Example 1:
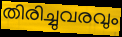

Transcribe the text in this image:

തിരിച്ചുവരവും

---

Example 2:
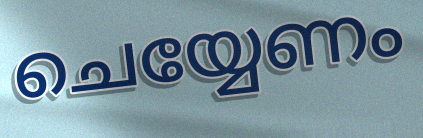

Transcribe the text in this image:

ചെയ്യേണം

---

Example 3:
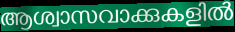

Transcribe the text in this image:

ആശ്വാസവാക്കുകളിൽ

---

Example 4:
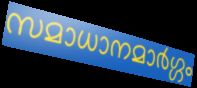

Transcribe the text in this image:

സമാധാനമാർഗ്ഗം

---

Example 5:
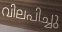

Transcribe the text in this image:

വിലപിച്ചു